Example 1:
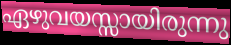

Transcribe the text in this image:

ഏഴുവയസ്സായിരുന്നു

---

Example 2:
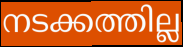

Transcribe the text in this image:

നടക്കത്തില്ല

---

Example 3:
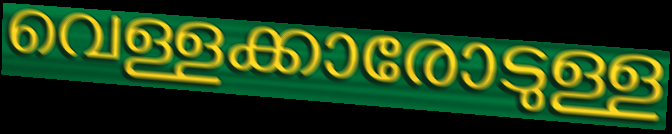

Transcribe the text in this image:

വെള്ളക്കാരോടുള്ള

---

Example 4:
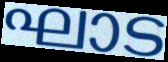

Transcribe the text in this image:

ഘാട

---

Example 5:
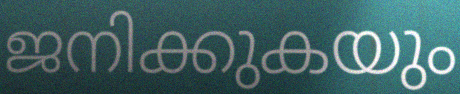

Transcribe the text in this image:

ജനിക്കുകയും